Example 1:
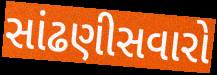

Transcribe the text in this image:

સાંઢણીસવારો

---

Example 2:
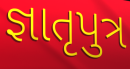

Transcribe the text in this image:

જ્ઞાતૃપુત્ર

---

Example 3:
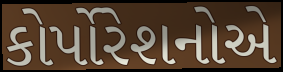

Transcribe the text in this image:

કોર્પોરેશનોએ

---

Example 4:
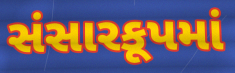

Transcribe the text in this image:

સંસારકૂપમાં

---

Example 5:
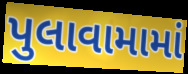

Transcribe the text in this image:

પુલાવામામાં